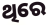
ଥିରେ